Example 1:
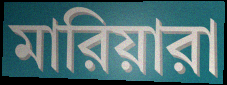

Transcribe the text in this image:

মারিয়ারা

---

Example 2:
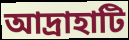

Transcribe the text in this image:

আদ্রাহাটি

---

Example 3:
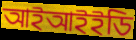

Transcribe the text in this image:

আইআইইডি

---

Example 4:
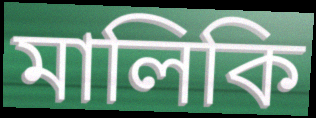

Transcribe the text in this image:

মালিকি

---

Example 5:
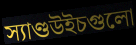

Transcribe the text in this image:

স্যাণ্ডউইচগুলো